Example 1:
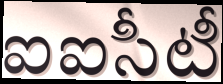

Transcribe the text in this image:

ఐఐసీటీ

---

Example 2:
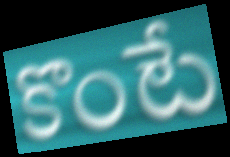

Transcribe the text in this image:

కొంటే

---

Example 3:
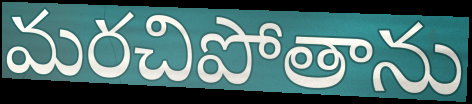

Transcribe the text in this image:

మరచిపోతాను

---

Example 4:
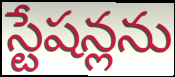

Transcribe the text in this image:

స్టేషన్లను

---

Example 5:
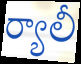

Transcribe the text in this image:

ర్యాలీ